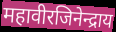
महावीरजिनेन्द्राय